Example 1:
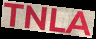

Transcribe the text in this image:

TNLA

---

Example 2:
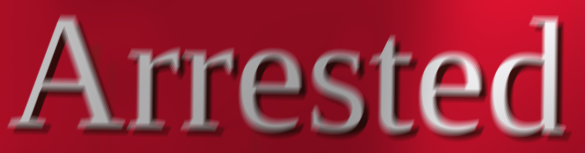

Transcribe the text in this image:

Arrested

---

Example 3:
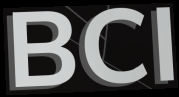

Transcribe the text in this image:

BCI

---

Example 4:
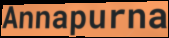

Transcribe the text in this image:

Annapurna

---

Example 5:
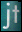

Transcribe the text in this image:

jt